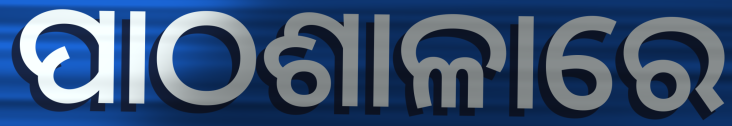
ପାଠଶାଳାରେ